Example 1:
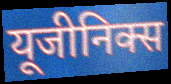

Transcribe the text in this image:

यूजीनिक्स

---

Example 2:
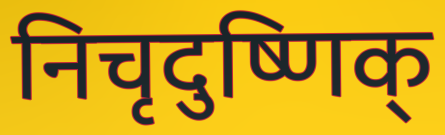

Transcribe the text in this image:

निचृदुष्णिक्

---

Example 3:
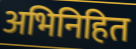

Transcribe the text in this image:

अभिनिहित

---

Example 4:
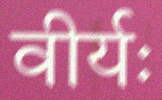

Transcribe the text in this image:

वीर्यः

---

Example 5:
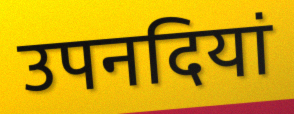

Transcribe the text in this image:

उपनदियां